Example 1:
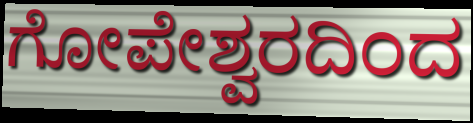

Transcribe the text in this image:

ಗೋಪೇಶ್ವರದಿಂದ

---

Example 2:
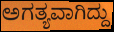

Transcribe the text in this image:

ಅಗತ್ಯವಾಗಿದ್ದು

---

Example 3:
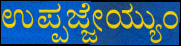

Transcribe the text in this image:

ಉಪ್ಪಜ್ಜೇಯ್ಯುಂ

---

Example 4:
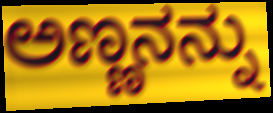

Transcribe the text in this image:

ಅಣ್ಣನನ್ನು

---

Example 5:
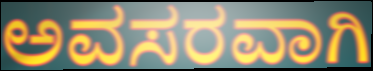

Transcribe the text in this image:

ಅವಸರವಾಗಿ